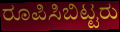
ರೂಪಿಸಿಬಿಟ್ಟರು